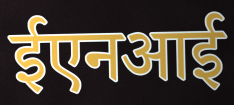
ईएनआई